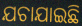
ଯଚାଯାଇଛି